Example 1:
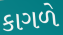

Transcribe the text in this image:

કાગળે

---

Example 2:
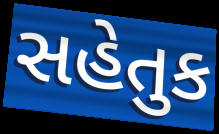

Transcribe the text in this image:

સહેતુક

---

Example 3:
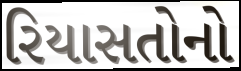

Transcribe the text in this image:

રિયાસતોનો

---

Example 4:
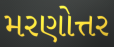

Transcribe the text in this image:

મરણોત્તર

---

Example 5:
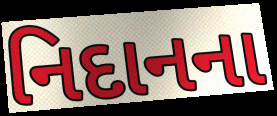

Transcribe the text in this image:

નિદાનના